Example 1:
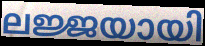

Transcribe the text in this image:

ലജ്ജയായി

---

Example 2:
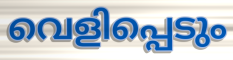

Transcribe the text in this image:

വെളിപ്പെടും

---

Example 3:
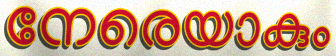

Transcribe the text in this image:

നേരെയാകും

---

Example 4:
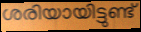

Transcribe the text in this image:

ശരിയായിട്ടുണ്ട്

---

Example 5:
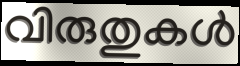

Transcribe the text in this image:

വിരുതുകൾ